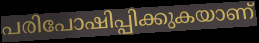
പരിപോഷിപ്പിക്കുകയാണ്